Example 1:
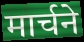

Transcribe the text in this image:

मार्चने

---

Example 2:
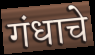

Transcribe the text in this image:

गंधाचे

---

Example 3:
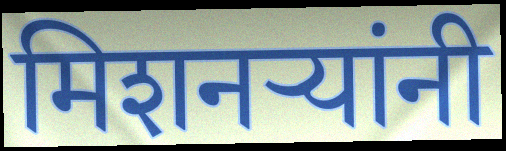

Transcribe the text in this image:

मिशनर्‍यांनी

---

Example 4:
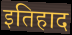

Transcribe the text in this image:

इतिहाद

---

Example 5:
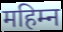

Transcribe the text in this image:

महिम्न